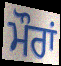
ਮੌਰਾਂ